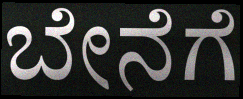
ಬೇನೆಗೆ